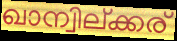
ഖാന്വില്ക്കര്